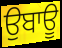
ਉਬਾਊ